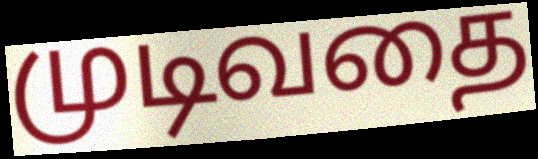
முடிவதை